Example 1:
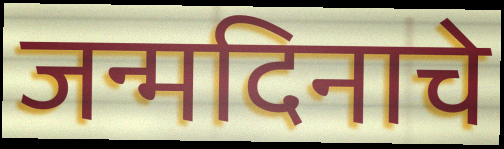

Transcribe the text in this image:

जन्मदिनाचे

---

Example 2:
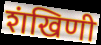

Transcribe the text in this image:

शंखिणी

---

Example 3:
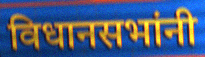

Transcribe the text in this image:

विधानसभांनी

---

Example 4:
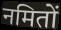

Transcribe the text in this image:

नमितों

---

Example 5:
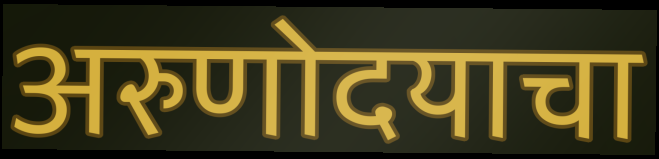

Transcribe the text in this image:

अरुणोदयाचा